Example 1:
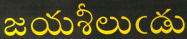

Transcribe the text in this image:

జయశీలుఁడు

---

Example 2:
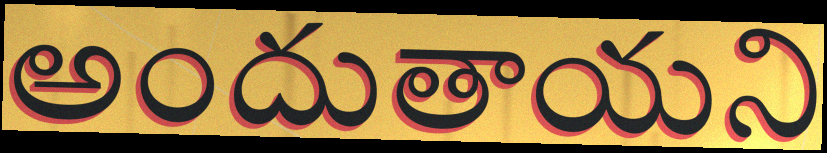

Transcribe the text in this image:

అందుతాయని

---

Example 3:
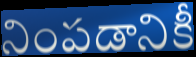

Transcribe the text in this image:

నింపడానికీ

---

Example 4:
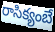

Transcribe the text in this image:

రాసిక్యంబే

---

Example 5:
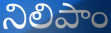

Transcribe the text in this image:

నిలిపాం